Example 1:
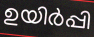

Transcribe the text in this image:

ഉയിർപ്പി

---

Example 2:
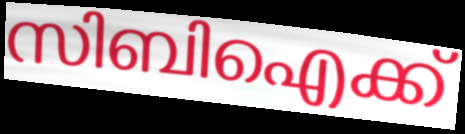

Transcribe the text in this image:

സിബിഐക്ക്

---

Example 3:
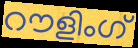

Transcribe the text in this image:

റൗളിംഗ്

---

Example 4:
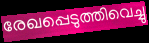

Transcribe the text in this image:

രേഖപ്പെടുത്തിവെച്ചു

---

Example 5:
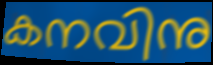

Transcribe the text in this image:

കനവിനു